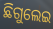
ଛିଗୁଲେଇ